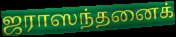
ஜராஸந்தனைக்